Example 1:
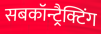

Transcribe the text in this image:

सबकॉन्ट्रैक्टिंग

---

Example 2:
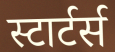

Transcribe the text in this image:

स्टार्टर्स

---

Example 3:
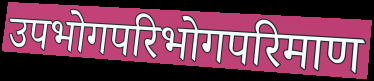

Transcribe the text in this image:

उपभोगपरिभोगपरिमाण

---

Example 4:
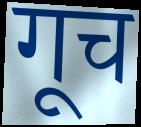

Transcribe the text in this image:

गूच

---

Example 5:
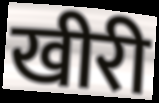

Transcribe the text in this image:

खीरी